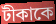
টীকাকে